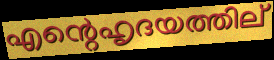
എന്റെഹൃദയത്തില്